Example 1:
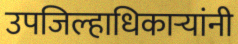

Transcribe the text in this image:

उपजिल्हाधिकाऱ्यांनी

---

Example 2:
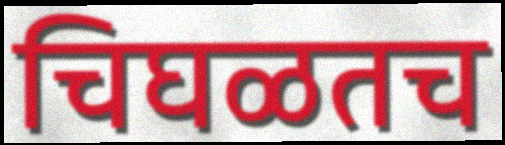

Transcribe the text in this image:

चिघळतच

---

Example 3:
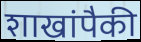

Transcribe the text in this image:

शाखांपैकी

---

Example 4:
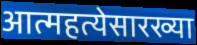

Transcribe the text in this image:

आत्महत्येसारख्या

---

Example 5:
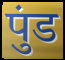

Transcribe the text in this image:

पुंड